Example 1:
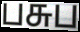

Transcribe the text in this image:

பசுப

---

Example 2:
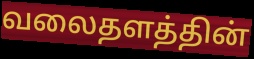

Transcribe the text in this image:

வலைதளத்தின்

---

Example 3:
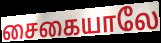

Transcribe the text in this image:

சைகையாலே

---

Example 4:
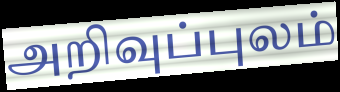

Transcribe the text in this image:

அறிவுப்புலம்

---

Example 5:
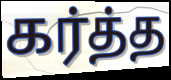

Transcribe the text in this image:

கர்த்த